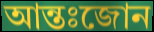
আন্তঃজোন